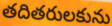
తదితరులకును